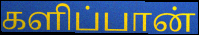
களிப்பான்